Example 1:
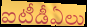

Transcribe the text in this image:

ఐటీడీఏలు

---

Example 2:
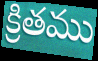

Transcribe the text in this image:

క్రితము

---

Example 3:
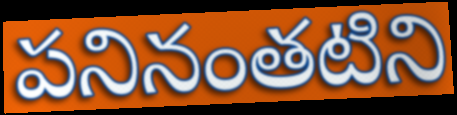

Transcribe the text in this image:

పనినంతటిని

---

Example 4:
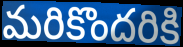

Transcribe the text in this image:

మరికొందరికి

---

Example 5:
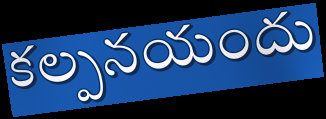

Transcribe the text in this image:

కల్పనయందు